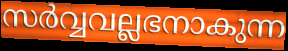
സർവ്വവല്ലഭനാകുന്ന